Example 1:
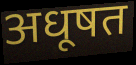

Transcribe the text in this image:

अधूषत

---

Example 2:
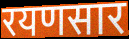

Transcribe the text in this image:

रयणसार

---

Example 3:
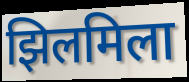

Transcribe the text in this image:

झिलमिला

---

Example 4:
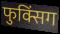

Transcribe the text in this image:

फुक्सिंग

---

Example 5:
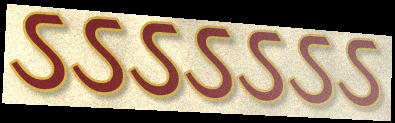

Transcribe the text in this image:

ऽऽऽऽऽऽऽ